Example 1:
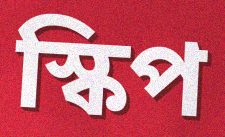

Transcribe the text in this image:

স্কিপ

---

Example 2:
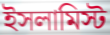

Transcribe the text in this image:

ইসলামিস্ট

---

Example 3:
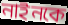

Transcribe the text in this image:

নাইনকে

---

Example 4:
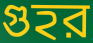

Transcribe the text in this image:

গুহর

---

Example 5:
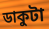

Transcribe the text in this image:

ডাকুটা